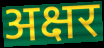
अक्षर